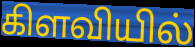
கிளவியில்